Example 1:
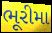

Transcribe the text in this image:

ભૂરીમા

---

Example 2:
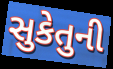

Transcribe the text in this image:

સુકેતુની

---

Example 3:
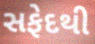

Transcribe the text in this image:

સફેદથી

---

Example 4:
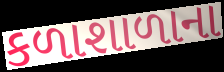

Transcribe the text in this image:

કળાશાળાના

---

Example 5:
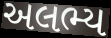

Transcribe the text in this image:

અલભ્ય